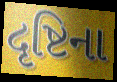
દૃષ્ટિના